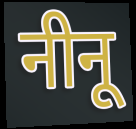
नीनू